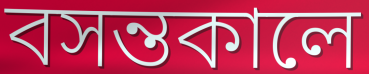
বসন্তকালে